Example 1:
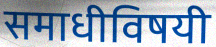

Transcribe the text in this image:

समाधीविषयी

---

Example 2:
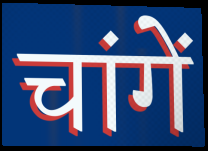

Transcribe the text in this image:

चांगें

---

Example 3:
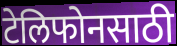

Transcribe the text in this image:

टेलिफोनसाठी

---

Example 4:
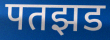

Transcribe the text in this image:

पतझड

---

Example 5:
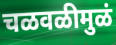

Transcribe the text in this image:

चळवळीमुळं